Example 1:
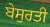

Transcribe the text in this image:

ਬੇਸੁਰਤੀ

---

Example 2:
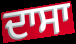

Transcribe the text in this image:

ਦਾਸਾ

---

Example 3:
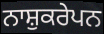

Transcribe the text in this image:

ਨਾਸ਼ੁਕਰੇਪਨ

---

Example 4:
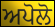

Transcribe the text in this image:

ਅਪੋਲੋ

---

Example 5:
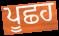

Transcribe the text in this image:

ਪੂਛਹ